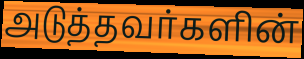
அடுத்தவர்களின்